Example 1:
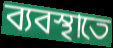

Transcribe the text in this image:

ব্যবস্থাতে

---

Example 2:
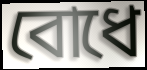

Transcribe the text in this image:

বোধে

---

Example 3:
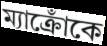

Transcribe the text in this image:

ম্যাক্রোঁকে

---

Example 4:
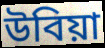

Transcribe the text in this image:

উবিয়া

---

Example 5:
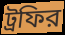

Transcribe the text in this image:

ট্রফির